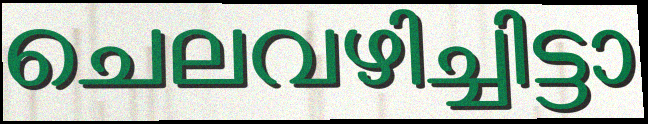
ചെലവഴിച്ചിട്ടാ